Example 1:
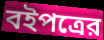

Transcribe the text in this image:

বইপত্রের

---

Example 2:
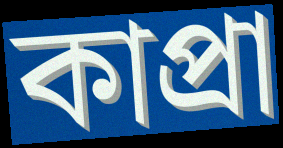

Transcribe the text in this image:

কাপ্রা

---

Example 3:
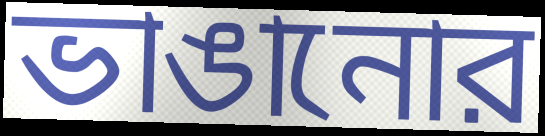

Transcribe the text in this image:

ভাঙানোর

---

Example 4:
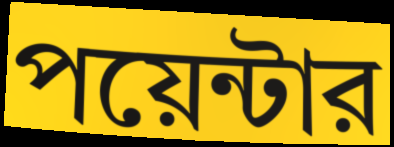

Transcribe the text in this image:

পয়েন্টার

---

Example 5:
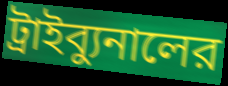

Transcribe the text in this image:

ট্রাইব্যুনালের